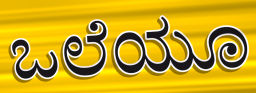
ಒಲೆಯೂ